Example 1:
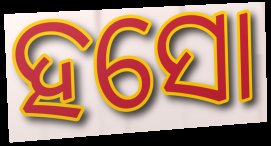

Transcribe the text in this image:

ହସୋ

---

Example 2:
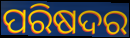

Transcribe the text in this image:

ପରିଷଦର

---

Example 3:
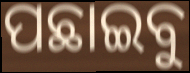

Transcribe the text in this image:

ପଛାଇବୁ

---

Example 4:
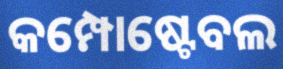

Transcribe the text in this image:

କମ୍ପୋଷ୍ଟେବଲ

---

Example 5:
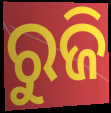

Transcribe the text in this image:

ରୁଜି